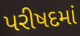
પરીષદમાં